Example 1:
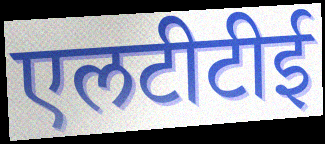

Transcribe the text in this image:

एलटीटीई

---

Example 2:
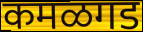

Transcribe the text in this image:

कमळगड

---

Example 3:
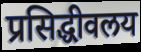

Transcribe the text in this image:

प्रसिद्धीवलय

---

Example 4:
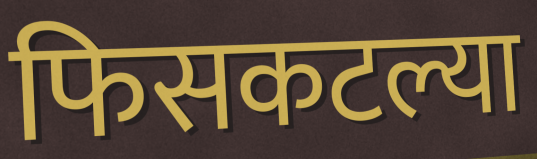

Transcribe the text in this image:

फिसकटल्या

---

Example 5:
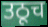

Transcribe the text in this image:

उठूच